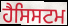
ਹੈਸਿਸਟਮ